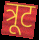
त्रूट